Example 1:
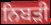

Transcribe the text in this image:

ਨਿਬੜੀ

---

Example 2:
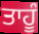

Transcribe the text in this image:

ਤਾਹੂੰ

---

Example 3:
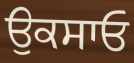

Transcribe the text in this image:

ਉਕਸਾਓ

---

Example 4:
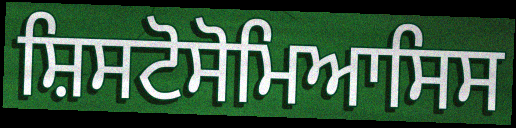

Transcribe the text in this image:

ਸ਼ਿਸਟੋਸੋਮਿਆਸਿਸ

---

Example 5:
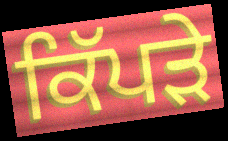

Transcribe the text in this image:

ਕਿੱਪੜੇ